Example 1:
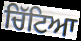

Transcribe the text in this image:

ਚਿੱਟਿਆ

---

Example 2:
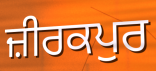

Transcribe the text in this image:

ਜ਼ੀਰਕਪੁਰ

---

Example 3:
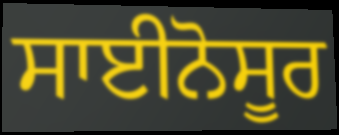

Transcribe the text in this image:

ਸਾਈਨੋਸੂਰ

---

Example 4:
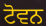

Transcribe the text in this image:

ਟੋਵਨ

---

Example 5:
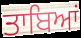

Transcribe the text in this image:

ਤਾਬਿਆਂ